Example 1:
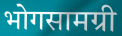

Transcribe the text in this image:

भोगसामग्री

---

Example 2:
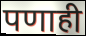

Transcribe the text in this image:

पणाही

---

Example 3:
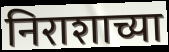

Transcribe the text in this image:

निराशाच्या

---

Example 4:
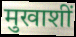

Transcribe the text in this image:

मुखाशीं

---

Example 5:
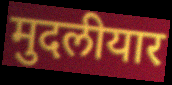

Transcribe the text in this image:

मुदलीयार